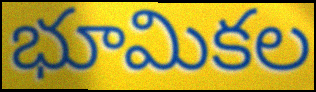
భూమికల